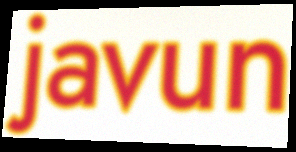
javun